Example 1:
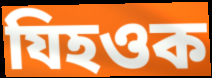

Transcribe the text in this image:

যিহওক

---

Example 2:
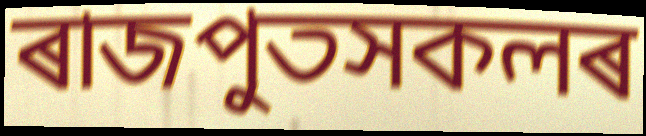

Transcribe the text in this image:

ৰাজপুতসকলৰ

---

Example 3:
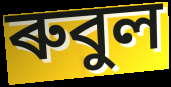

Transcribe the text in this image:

ৰুবুল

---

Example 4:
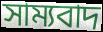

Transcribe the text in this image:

সাম্যবাদ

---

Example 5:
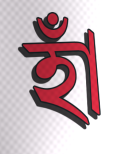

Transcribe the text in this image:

হাঁ